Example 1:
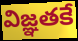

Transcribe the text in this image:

విజ్ఞతకే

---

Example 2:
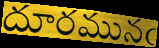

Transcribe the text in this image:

దూరమునఁ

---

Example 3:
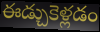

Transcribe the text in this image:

ఈడ్చుకెళ్లడం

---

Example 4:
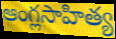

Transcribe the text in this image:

ఆంగ్లసాహిత్య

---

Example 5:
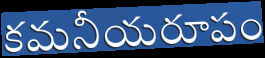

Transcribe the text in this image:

కమనీయరూపం